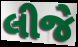
લીજે